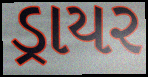
ડ્રાયર